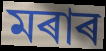
মৰাৰ